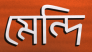
মেন্দি